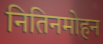
नितिनमोहन